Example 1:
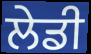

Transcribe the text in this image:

ਲੇਡੀ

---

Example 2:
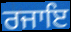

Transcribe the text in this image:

ਰਜਾਇ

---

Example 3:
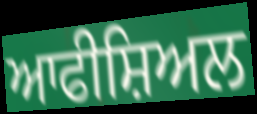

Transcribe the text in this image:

ਆਫੀਸ਼ਿਅਲ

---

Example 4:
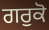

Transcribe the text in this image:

ਗਰੁਕੋ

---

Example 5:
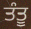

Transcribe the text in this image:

ਤੰਤੂ